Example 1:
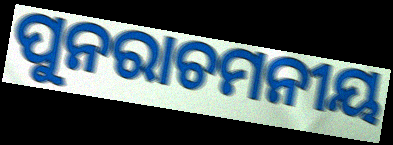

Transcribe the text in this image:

ପୁନରାଚମନୀୟ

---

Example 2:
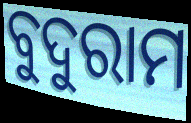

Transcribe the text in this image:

ବୁଦୁରାମ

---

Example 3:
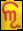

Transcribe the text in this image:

ଳୂ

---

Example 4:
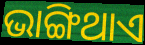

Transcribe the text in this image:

ଭାଙ୍ଗିଥାଏ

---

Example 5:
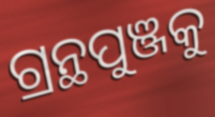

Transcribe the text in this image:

ଗ୍ରନ୍ଥପୁଞ୍ଜକୁ